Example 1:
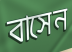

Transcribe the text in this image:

বাসেন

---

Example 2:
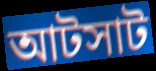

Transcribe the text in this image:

আটসাট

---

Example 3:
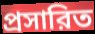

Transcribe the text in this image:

প্রসারিত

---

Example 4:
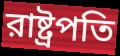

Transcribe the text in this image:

রাষ্ট্রপতি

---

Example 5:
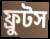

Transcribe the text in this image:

ফ্রুটস